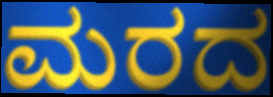
ಮರದ